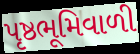
પૃષ્ઠભૂમિવાળી